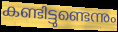
കണ്ടിട്ടുണ്ടെന്നും